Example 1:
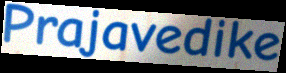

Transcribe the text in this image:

Prajavedike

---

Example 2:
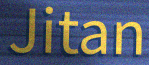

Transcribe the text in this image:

Jitan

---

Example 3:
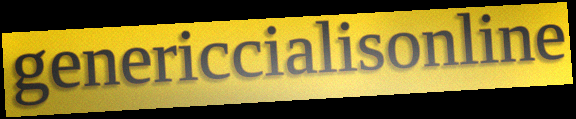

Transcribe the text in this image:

genericcialisonline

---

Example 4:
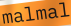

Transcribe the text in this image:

malmal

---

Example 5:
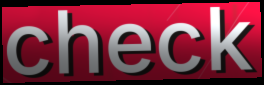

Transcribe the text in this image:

check